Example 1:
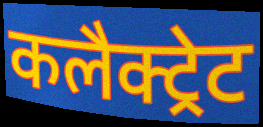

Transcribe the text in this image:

कलैक्ट्रेट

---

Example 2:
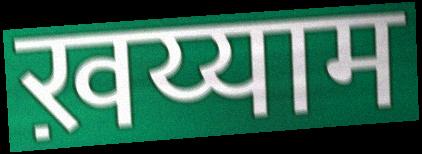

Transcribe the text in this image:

ख़य्याम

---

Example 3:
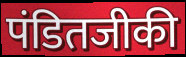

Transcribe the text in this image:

पंडितजीकी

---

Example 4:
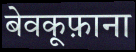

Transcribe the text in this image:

बेवकूफ़ाना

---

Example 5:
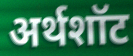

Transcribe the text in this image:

अर्थशॉट